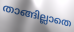
താങ്ങില്ലാതെ